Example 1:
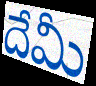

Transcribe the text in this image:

దేమీ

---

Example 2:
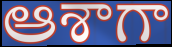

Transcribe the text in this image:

ఆశాగా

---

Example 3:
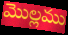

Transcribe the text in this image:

మొల్లము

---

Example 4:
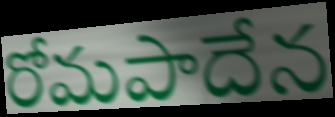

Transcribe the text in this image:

రోమపాదేన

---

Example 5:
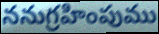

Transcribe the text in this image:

ననుగ్రహింపుము